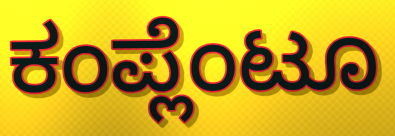
ಕಂಪ್ಲೆಂಟೂ